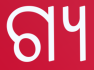
ଗ୍ଯ